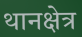
थानक्षेत्र